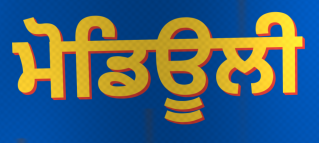
ਮੋਡਿਊਲੀ